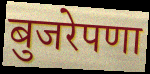
बुजरेपणा